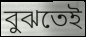
বুঝতেই